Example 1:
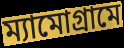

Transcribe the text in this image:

ম্যামোগ্রামে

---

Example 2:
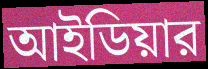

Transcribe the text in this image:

আইডিয়ার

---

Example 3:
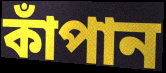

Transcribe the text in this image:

কাঁপান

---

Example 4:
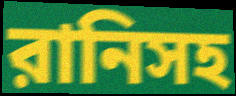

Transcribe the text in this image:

রানিসহ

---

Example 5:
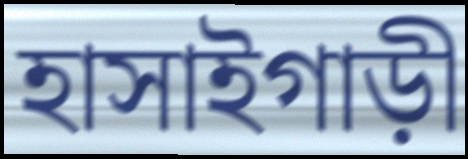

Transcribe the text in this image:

হাসাইগাড়ী